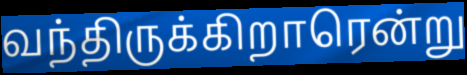
வந்திருக்கிறாரென்று